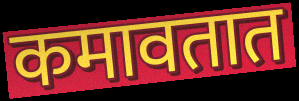
कमावतात